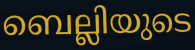
ബെല്ലിയുടെ